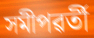
সমীপৱৰ্তী